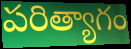
పరిత్యాగం